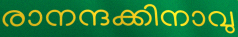
രാനന്ദക്കിനാവു